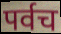
पर्वच